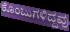
ಕೊಂಬುಗಳಿದ್ದವು